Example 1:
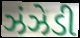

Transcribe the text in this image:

ઝંઝેડી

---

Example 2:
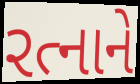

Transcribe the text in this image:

રત્નાને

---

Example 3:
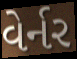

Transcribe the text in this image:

વેર્નર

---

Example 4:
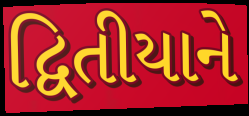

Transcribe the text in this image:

દ્વિતીયાને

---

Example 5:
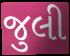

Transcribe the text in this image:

જુલી